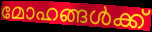
മോഹങ്ങൾക്ക്